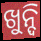
ଖୁନ୍ଦି